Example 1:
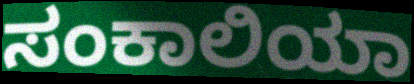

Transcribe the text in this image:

ಸಂಕಾಲಿಯಾ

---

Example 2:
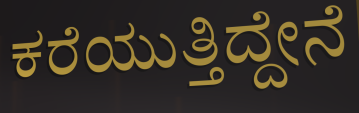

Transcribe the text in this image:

ಕರೆಯುತ್ತಿದ್ದೇನೆ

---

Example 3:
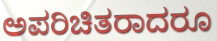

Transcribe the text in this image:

ಅಪರಿಚಿತರಾದರೂ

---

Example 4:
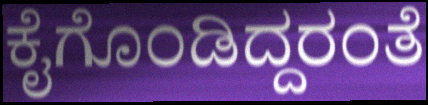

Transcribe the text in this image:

ಕೈಗೊಂಡಿದ್ದರಂತೆ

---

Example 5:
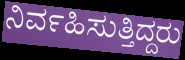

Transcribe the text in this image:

ನಿರ್ವಹಿಸುತ್ತಿದ್ದರು